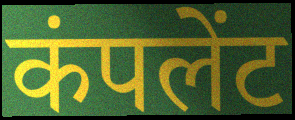
कंपलेंट